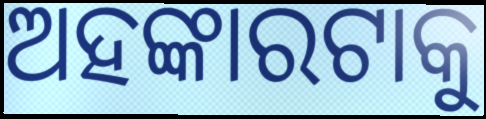
ଅହଙ୍କାରଟାକୁ